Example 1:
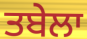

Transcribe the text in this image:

ਤਬੇਲਾ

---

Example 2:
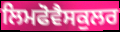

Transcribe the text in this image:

ਲਿਮਫੋਵੈਸਕੁਲਰ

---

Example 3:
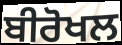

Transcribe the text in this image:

ਬੀਰੋਖਲ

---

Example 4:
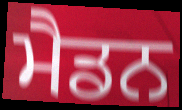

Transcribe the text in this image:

ਮੈਡਨ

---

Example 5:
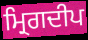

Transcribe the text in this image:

ਮ੍ਰਿਗਦੀਪ